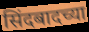
सिंदबादच्या